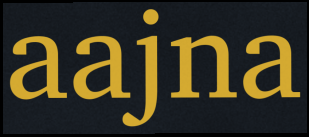
aajna